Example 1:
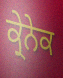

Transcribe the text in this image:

ਕ੍ਰੇਨੇਕ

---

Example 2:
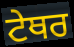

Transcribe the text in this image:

ਟੇਥਰ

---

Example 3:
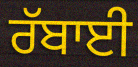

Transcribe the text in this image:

ਰੱਬਾਈ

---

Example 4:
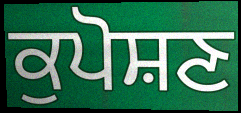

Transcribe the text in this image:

ਕੁਪੋਸ਼ਣ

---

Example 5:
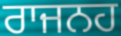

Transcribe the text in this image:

ਰਾਜਨਹ